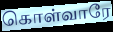
கொள்வாரே